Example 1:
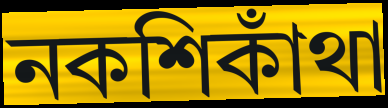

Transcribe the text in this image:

নকশিকাঁথা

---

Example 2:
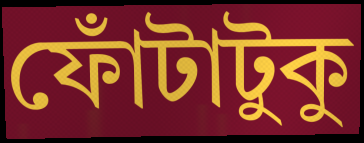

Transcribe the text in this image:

ফোঁটাটুকু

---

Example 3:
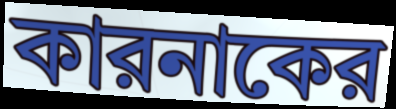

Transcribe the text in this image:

কারনাকের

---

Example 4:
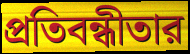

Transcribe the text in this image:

প্রতিবন্ধীতার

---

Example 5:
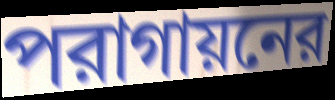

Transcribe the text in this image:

পরাগায়নের